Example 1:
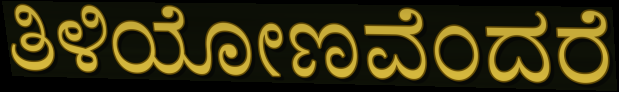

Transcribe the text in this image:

ತಿಳಿಯೋಣವೆಂದರೆ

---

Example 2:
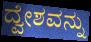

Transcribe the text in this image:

ದ್ವೇಶವನ್ನು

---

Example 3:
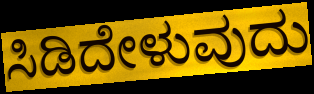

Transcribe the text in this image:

ಸಿಡಿದೇಳುವುದು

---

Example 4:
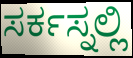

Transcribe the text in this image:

ಸರ್ಕಸ್ನಲ್ಲಿ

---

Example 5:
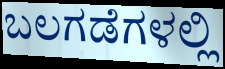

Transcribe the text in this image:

ಬಲಗಡೆಗಳಲ್ಲಿ